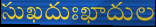
సుఖదుఃఖాదుల